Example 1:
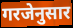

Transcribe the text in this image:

गरजेनुसार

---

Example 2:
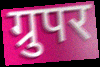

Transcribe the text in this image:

ग्रुपर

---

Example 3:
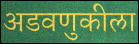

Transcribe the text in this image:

अडवणुकीला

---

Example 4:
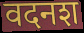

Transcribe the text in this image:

वदनश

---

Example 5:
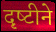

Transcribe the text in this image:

दृष्‍टीने